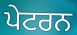
ਪੇਟਰਨ